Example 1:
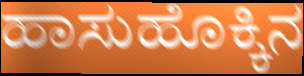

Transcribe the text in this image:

ಹಾಸುಹೊಕ್ಕಿನ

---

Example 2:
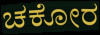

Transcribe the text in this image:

ಚಕೋರ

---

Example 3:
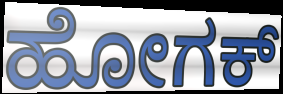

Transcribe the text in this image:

ಹೋಗಕ್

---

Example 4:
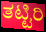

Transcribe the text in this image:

ತಟ್ಟಿರಿ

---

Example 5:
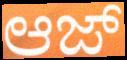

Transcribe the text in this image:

ಆಜ್